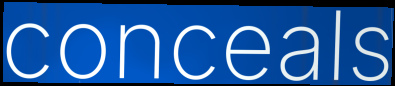
conceals